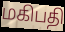
மகிபதி